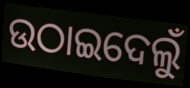
ଉଠାଇଦେଲୁଁ